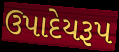
ઉપાદેયરૂપ